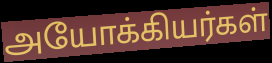
அயோக்கியர்கள்